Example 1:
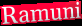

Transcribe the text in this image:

Ramuni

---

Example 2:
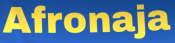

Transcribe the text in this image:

Afronaja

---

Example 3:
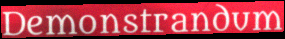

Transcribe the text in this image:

Demonstrandum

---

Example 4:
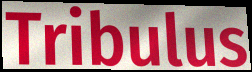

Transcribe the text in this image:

Tribulus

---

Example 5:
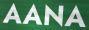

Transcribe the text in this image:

AANA